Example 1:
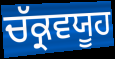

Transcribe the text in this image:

ਚੱਕ੍ਰਵਯੂਹ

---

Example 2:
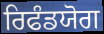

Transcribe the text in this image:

ਰਿਫੰਡਯੋਗ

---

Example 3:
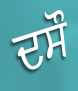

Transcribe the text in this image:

ਦਸੌ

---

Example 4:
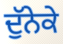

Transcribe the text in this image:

ਦੁੱਨੇਕੇ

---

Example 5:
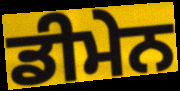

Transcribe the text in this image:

ਡੀਮੇਨ